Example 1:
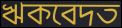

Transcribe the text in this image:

ঋকবেদত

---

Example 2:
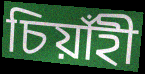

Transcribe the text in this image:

চিয়াঁহী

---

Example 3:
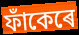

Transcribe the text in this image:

ফাঁকেৰে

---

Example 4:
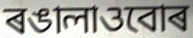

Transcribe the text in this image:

ৰঙালাওবোৰ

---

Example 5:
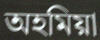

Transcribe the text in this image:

অহমিয়া